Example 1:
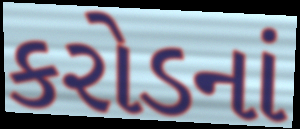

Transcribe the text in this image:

કરોડનાં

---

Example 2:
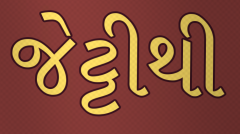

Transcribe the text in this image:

જેટ્ટીથી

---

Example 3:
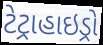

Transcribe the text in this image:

ટેટ્રાહાઇડ્રો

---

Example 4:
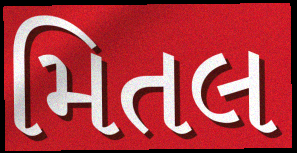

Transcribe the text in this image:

મિતલ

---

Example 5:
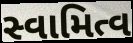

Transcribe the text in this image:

સ્વામિત્વ